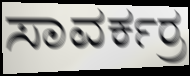
ಸಾವರ್ಕರ್ರ